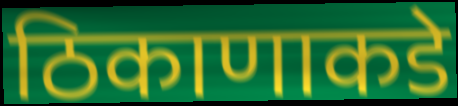
ठिकाणाकडे